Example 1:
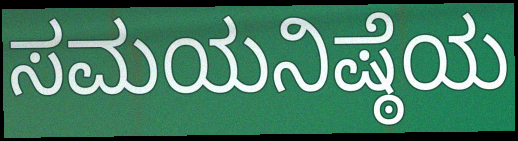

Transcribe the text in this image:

ಸಮಯನಿಷ್ಠೆಯ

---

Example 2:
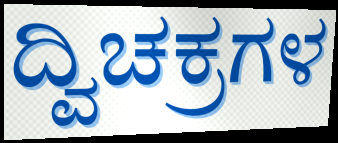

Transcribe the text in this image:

ದ್ವಿಚಕ್ರಗಳ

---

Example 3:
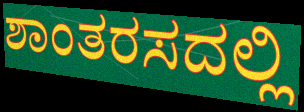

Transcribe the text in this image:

ಶಾಂತರಸದಲ್ಲಿ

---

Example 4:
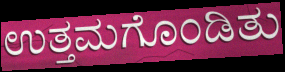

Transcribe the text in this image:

ಉತ್ತಮಗೊಂಡಿತು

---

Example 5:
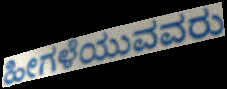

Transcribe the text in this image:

ಹೀಗಳೆಯುವವರು